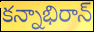
కన్నాభిరాన్